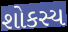
શોકસ્ય